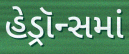
હેડ્રૉન્સમાં